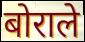
बोराले